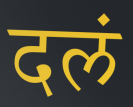
दलं